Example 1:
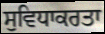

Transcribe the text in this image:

ਸੁਵਿਧਾਕਰਤਾ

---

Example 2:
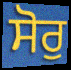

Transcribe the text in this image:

ਸੋਰੁ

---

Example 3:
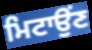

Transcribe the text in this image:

ਮਿਟਾਉਂਣ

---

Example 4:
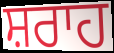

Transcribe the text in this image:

ਸ਼ਰਾਹ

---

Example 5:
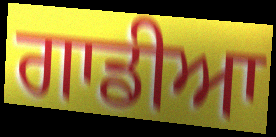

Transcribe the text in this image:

ਗਾਡੀਆ